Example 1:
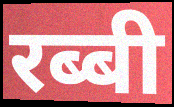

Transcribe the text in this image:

रब्बी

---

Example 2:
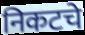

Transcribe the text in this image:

निकटचे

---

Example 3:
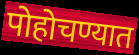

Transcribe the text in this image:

पोहोचण्यात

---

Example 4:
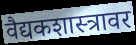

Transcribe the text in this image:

वैद्यकशास्त्रावर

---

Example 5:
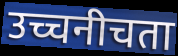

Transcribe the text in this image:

उच्चनीचता